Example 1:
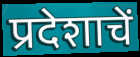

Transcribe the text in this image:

प्रदेशाचें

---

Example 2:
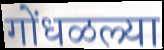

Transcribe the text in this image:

गोंधळल्या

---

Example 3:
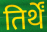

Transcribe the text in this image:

तिर्थें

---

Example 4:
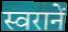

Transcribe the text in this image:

स्वरानें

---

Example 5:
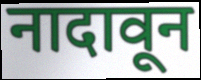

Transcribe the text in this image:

नादावून